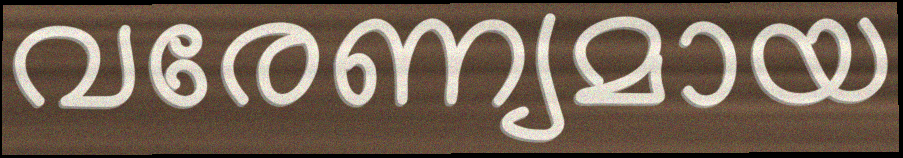
വരേണ്യമായ